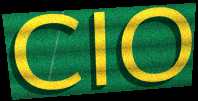
CIO